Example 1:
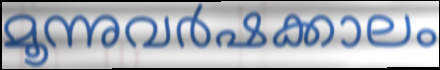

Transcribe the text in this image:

മൂന്നുവർഷക്കാലം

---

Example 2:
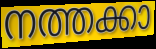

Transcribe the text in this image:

നത്തക്കാ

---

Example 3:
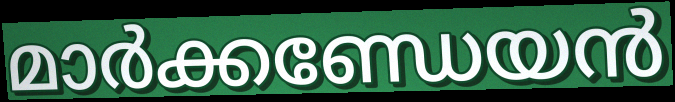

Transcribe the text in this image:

മാർക്കണ്ഡേയൻ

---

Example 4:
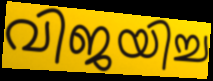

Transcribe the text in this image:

വിജയിച്ച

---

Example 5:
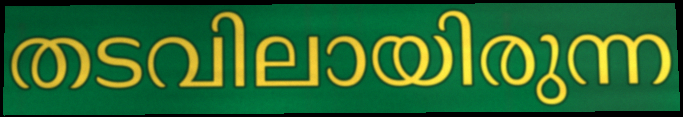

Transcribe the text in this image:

തടവിലായിരുന്ന